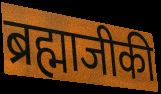
ब्रह्माजीकी